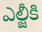
ఎల్జీకి